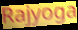
Rajyoga